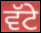
ਵੱਟੇ